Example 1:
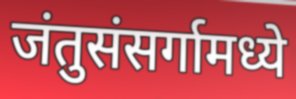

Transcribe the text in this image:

जंतुसंसर्गामध्ये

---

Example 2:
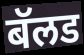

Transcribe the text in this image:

बॅलड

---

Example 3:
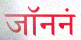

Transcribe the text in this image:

जॉननं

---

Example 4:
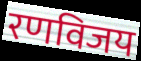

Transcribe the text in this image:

रणविजय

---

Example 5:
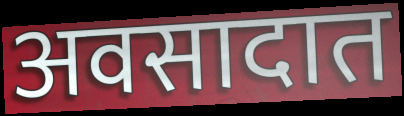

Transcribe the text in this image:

अवसादात